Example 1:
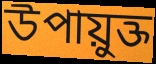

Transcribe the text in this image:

উপায়ুক্ত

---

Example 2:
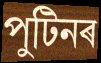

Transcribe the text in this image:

পুটিনৰ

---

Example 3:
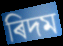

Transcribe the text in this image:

ৰিদম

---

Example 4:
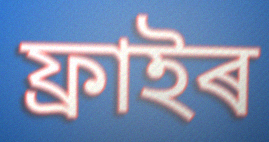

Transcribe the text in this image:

ফ্ৰাইৰ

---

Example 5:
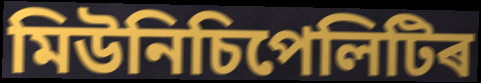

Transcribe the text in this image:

মিউনিচিপেলিটিৰ